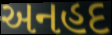
અનહદ